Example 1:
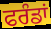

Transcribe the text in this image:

ਫਰੰਡਾਂ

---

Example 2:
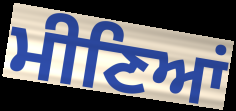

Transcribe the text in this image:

ਮੀਣਿਆਂ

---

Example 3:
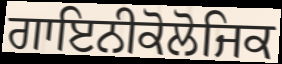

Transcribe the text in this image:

ਗਾਇਨੀਕੋਲੋਜਿਕ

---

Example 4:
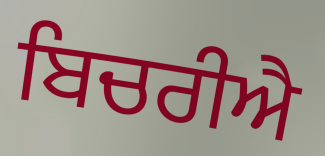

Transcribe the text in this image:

ਬਿਚਰੀਐ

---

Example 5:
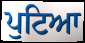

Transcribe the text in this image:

ਪੁਟਿਆ